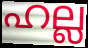
ഹല്ല